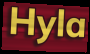
Hyla